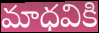
మాధవికి